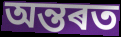
অন্তৰত